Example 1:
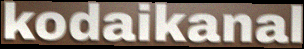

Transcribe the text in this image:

kodaikanal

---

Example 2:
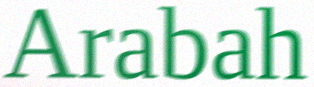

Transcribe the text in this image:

Arabah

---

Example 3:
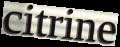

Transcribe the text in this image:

citrine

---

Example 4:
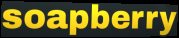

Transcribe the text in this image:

soapberry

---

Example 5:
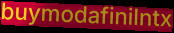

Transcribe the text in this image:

buymodafinilntx